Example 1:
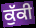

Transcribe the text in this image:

ਕੁੱਕੀ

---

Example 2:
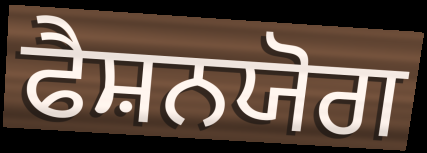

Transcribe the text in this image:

ਫੈਸ਼ਨਯੋਗ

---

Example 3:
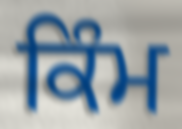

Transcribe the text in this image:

ਕਿੰਮ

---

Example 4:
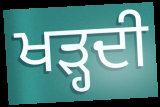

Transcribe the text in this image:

ਖੜ੍ਹਦੀ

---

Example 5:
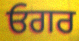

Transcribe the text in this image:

ਓਗਰ